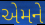
એમને